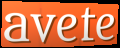
avete